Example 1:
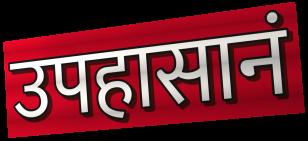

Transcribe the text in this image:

उपहासानं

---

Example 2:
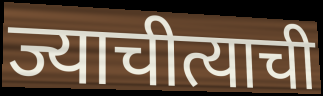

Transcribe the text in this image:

ज्याचीत्याची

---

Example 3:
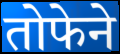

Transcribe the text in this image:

तोफेने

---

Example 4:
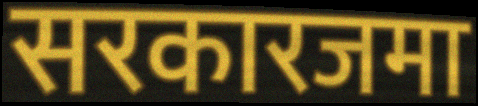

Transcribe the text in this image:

सरकारजमा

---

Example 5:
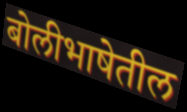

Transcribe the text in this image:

बोलीभाषेतील